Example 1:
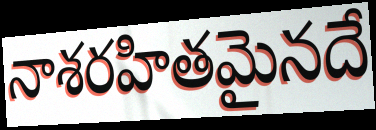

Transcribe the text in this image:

నాశరహితమైనదే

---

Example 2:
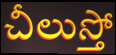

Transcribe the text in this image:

చీలుస్తో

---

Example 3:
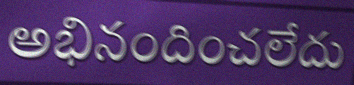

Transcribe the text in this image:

అభినందించలేదు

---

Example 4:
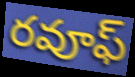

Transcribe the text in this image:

రవూఫ్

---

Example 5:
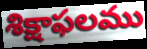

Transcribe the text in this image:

శిక్షాఫలము